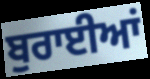
ਬੁਰਾਈਆਂ